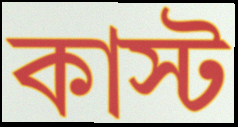
কাস্ট